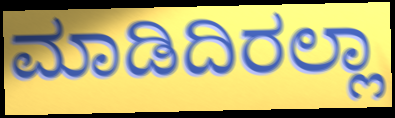
ಮಾಡಿದಿರಲ್ಲಾ